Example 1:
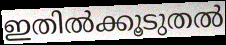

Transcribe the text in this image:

ഇതിൽക്കൂടുതൽ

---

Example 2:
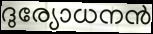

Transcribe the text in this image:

ദുര്യോധനൻ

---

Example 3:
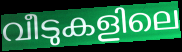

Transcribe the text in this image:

വീടുകളിലെ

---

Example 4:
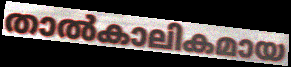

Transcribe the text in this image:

താൽകാലികമായ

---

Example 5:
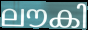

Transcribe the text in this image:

ലൗകി